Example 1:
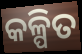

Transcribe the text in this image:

କଳ୍ପିତ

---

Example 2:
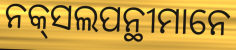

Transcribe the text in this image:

ନକ୍‌ସଲପନ୍ଥୀମାନେ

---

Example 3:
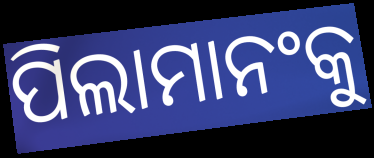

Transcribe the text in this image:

ପିଲାମାନଂକୁ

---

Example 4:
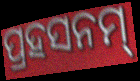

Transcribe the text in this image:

ପ୍ରହସନମ୍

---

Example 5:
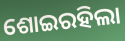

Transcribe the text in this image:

ଶୋଇରହିଲା